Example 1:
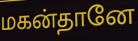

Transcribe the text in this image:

மகன்தானே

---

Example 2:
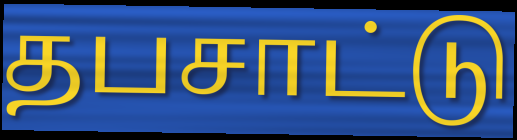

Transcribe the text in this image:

தபசாட்டு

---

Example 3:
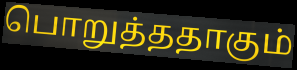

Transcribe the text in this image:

பொறுத்ததாகும்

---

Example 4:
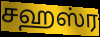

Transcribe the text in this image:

சஹஸ்ர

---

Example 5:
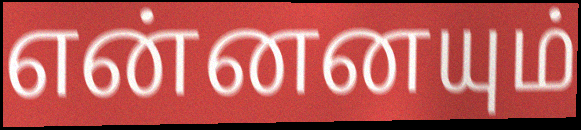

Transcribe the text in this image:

என்னனயும்